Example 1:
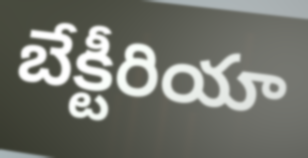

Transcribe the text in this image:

బేక్టీరియా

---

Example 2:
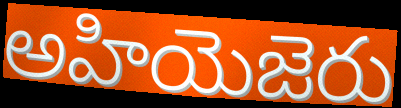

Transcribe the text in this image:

అహియెజెరు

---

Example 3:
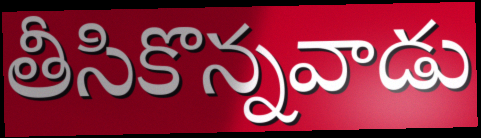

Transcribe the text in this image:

తీసికొన్నవాడు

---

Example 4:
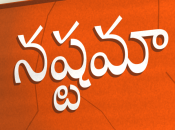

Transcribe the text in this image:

నష్టమా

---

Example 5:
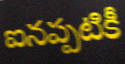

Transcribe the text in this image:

ఐనప్పటికీ